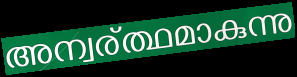
അന്വര്ത്ഥമാകുന്നു